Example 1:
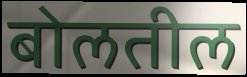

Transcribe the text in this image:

बोलतील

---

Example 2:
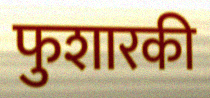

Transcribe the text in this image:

फुशारकी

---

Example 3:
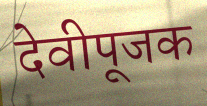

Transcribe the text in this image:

देवीपूजक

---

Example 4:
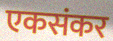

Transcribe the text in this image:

एकसंकर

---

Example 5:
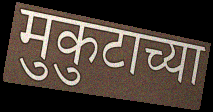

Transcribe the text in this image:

मुकुटाच्या